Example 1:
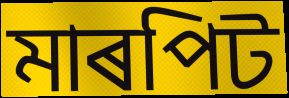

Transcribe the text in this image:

মাৰপিট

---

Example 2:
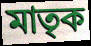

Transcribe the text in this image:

মাতৃক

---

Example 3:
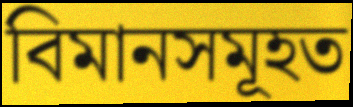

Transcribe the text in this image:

বিমানসমূহত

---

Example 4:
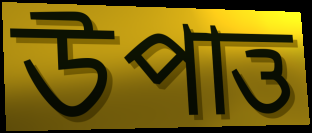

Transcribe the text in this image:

উপাত্ত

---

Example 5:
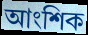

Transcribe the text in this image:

আংশিক